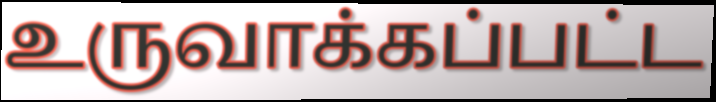
உருவாக்கப்பட்ட